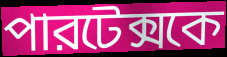
পারটেক্সকে